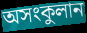
অসংকুলান